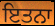
ਇਤਨਾ